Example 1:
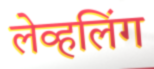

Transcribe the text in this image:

लेव्हलिंग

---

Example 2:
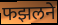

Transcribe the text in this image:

फझलने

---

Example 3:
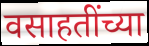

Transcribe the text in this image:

वसाहतींच्या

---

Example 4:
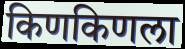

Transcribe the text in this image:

किणकिणला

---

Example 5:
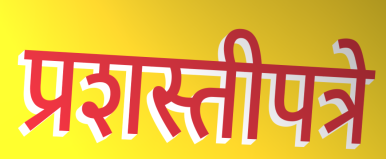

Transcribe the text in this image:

प्रशस्तीपत्रे